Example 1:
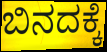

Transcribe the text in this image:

ಬಿನದಕ್ಕೆ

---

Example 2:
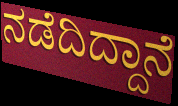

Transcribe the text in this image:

ನಡೆದಿದ್ದಾನೆ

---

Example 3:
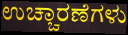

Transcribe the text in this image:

ಉಚ್ಚಾರಣೆಗಳು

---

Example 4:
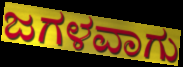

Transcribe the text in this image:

ಜಗಳವಾಗು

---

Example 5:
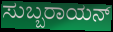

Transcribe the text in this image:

ಸುಬ್ಬರಾಯನ್